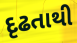
દૃઢતાથી